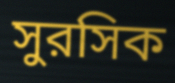
সুরসিক